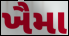
ખૈમા